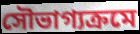
সৌভাগ্যক্রমে